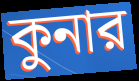
কুনার